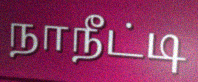
நாநீட்டி